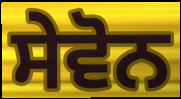
ਸੇਵੋਨ